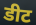
डीट